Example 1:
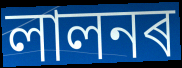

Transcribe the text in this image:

লালনৰ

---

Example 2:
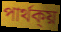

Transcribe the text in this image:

পাৰ্থক্য়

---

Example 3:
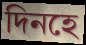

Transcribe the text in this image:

দিনহে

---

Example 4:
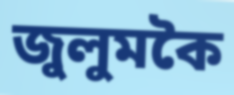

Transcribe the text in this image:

জুলুমকৈ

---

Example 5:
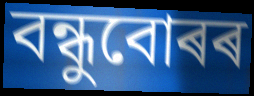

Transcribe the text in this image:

বন্ধুবোৰৰ